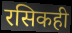
रसिकही